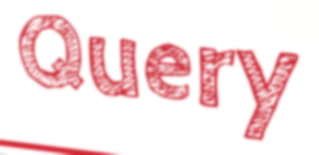
Query